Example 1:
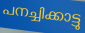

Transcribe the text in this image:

പനച്ചിക്കാട്ടു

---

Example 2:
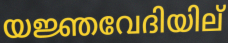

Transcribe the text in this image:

യജ്ഞവേദിയില്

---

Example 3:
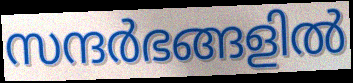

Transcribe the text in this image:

സന്ദർഭങ്ങളിൽ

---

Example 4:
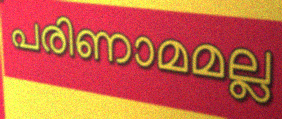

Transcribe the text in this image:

പരിണാമമല്ല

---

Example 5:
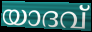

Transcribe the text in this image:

യാദവ്